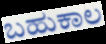
ಬಹುಕಾಲ